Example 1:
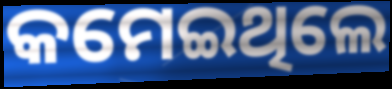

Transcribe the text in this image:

କମେଇଥିଲେ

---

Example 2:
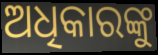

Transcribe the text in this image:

ଅଧିକାରଙ୍କୁ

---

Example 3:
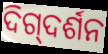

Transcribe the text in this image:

ଦିଗ୍‍ଦର୍ଶନ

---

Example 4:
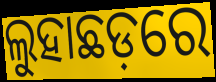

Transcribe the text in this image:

ଲୁହାଛଡ଼ରେ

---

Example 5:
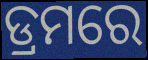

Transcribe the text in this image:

ଡ୍ରମରେ